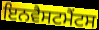
ਇਨਵੈਸਟਮੈਂਟਸ